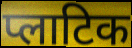
प्लाटिक